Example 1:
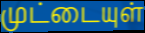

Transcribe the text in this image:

முட்டையுள்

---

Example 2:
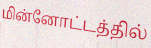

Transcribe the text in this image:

மின்னோட்டத்தில்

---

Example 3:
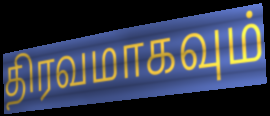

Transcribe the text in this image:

திரவமாகவும்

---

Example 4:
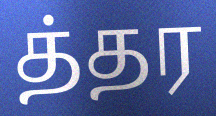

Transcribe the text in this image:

த்தர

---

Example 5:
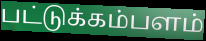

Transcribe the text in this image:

பட்டுக்கம்பளம்